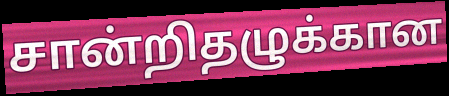
சான்றிதழுக்கான